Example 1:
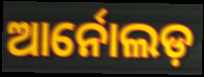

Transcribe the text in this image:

ଆର୍ନୋଲଡ଼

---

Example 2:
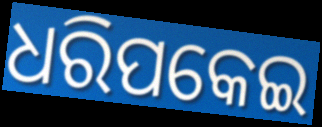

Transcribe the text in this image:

ଧରିପକେଇ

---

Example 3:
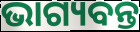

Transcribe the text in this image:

ଭାଗ୍ୟବନ୍ତ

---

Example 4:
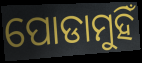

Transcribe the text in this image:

ପୋଡାମୁହିଁ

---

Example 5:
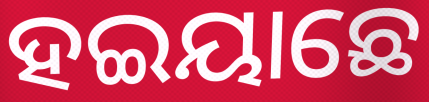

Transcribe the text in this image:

ହଇୟାଛେ